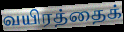
வயிரத்தைக்